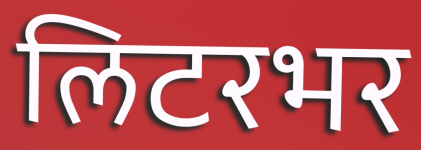
लिटरभर